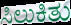
ಸಿಲುಕಿತು